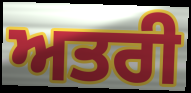
ਅਤਰੀ